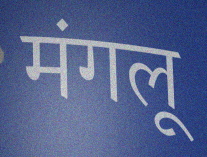
मंगलू